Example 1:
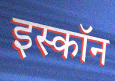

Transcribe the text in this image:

इस्कॉन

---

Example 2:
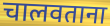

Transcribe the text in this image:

चालवताना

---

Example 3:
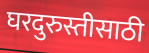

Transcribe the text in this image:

घरदुरुस्तीसाठी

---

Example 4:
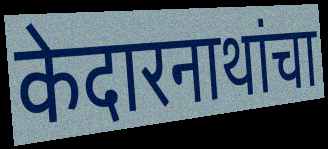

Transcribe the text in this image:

केदारनाथांचा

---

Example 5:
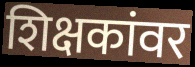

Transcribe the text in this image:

शिक्षकांवर